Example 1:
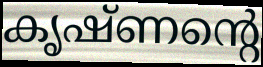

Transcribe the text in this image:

കൃഷ്ണന്റെ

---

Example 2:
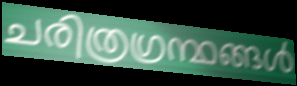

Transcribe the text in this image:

ചരിത്രഗ്രന്ഥങ്ങൾ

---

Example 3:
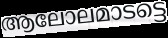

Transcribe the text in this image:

ആലോലമാടട്ടെ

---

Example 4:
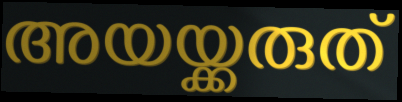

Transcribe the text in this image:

അയയ്ക്കരുത്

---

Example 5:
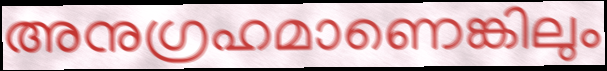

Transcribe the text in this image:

അനുഗ്രഹമാണെങ്കിലും